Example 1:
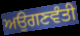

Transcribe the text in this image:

ਅਉਗਣਵੰਤੀ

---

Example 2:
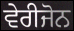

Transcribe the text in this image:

ਵੇਰੀਜੋਨ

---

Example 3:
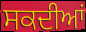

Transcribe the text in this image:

ਸਕਦੀਆਂ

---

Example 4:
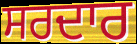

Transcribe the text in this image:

ਸਰਦਾਰ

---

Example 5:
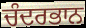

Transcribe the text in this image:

ਚੰਦਰਭਾਨ